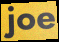
joe